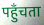
पहुँचता